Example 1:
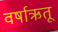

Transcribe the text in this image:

वर्षाऋतू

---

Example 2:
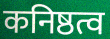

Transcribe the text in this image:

कनिष्ठत्व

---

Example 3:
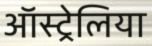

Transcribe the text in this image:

ऑॅस्ट्रेलिया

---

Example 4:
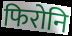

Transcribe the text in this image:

फिरोनि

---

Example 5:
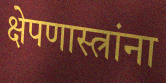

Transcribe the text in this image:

क्षेपणास्त्रांना